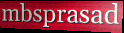
mbsprasad